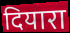
दियारा